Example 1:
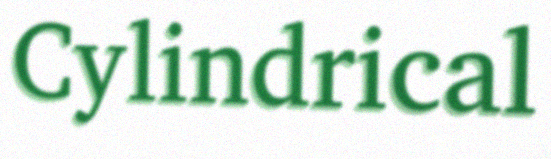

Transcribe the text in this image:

Cylindrical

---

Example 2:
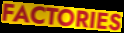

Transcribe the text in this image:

FACTORIES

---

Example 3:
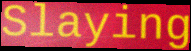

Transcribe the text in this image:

Slaying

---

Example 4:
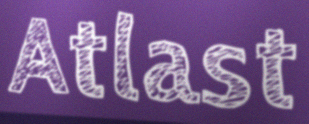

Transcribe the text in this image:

Atlast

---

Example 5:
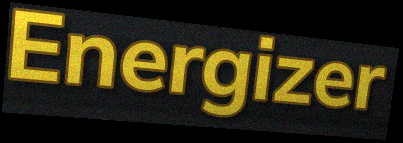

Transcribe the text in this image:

Energizer